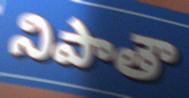
నిపాతౌ